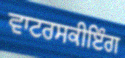
ਵਾਟਰਸਕੀਇੰਗ